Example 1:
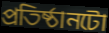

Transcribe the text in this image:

প্ৰতিষ্ঠানটো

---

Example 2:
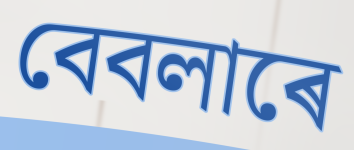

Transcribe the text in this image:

বেবলাৰে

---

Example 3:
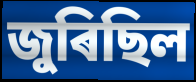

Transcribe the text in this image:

জুৰিছিল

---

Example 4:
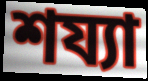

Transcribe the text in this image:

শয্যা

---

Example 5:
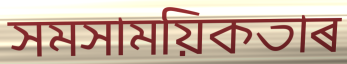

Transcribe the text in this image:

সমসাময়িকতাৰ